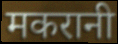
मकरानी